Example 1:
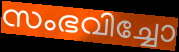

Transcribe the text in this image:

സംഭവിച്ചോ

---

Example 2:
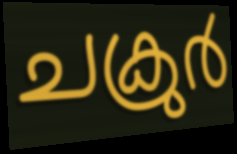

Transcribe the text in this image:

ചക്രുർ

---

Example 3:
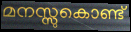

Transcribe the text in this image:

മനസ്സുകൊണ്ട്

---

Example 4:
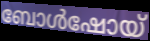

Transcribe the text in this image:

ബോൾഷോയ്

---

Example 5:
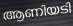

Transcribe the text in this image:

ആണിയടി